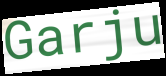
Garju